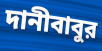
দানীবাবুর